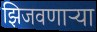
झिजवणाऱ्या